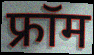
फ्रॉम